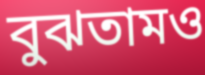
বুঝতামও